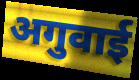
अगुवाई